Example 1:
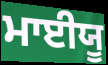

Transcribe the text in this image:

ਮਾਈਯੂ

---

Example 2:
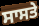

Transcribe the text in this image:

ਸਾਸਤੇ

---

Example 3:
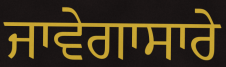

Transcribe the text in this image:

ਜਾਵੇਗਾਸਾਰੇ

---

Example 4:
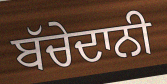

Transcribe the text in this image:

ਬੱਚੇਦਾਨੀ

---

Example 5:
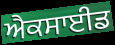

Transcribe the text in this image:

ਐਕਸਾਈਡ